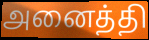
அனைத்தி